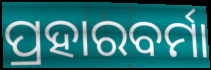
ପ୍ରହାରବର୍ମା